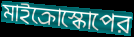
মাইক্রোস্কোপের